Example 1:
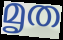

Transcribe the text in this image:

മൃത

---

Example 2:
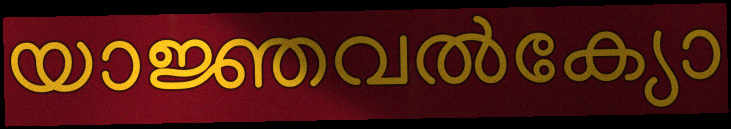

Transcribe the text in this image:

യാജ്ഞവൽക്യോ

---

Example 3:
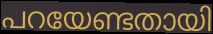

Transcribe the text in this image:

പറയേണ്ടതായി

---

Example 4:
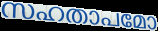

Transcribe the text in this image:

സഹതാപമോ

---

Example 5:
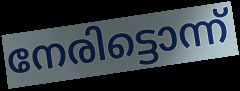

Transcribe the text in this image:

നേരിട്ടൊന്ന്